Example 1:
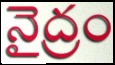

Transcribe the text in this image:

నైద్రం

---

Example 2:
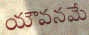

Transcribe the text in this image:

యౌవనమే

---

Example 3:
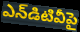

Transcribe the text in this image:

ఎన్‌డిటివీపై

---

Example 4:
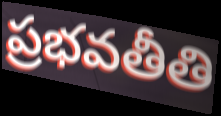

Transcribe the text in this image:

ప్రభవతీతి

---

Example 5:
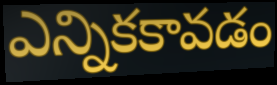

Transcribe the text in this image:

ఎన్నికకావడం